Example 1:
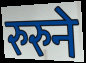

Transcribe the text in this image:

रुरुने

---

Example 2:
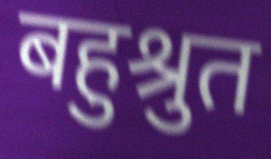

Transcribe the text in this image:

बहुश्रुत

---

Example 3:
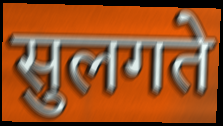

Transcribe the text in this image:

सुलगते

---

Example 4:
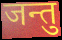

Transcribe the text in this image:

जन्तु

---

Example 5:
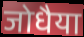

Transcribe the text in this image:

जोधैया